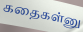
கதைகள்னு